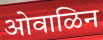
ओवाळिन